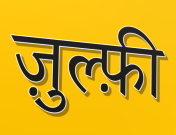
ज़ुल्फ़ी